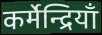
कर्मेन्द्रियाँ